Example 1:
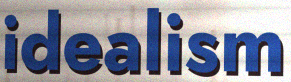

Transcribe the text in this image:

idealism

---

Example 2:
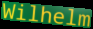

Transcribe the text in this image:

Wilhelm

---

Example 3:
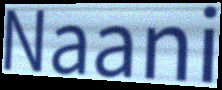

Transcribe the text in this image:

Naani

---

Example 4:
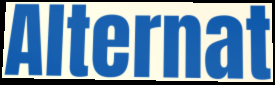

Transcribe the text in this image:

Alternat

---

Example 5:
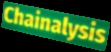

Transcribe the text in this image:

Chainalysis